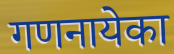
गणनायेका